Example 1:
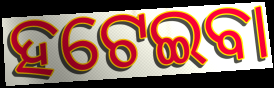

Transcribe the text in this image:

ହଟେଇବା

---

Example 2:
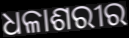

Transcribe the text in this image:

ଧଳାଶରୀର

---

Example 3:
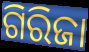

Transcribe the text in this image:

ଗିରିଜା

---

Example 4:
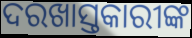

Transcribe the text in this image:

ଦରଖାସ୍ତକାରୀଙ୍କ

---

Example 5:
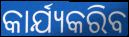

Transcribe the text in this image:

କାର୍ଯ୍ୟକରିବ